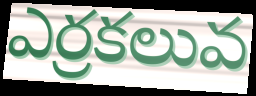
ఎర్రకలువ